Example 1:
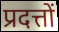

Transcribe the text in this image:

प्रदत्तों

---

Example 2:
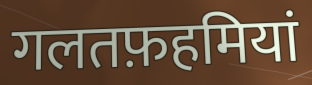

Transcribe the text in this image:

गलतफ़हमियां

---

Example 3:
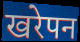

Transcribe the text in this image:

खरेपन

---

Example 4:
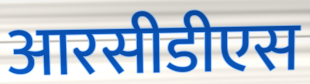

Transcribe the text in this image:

आरसीडीएस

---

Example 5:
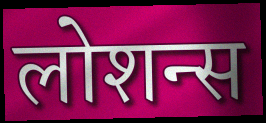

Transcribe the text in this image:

लोशन्स